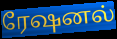
ரேஷனல்